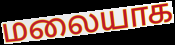
மலையாக